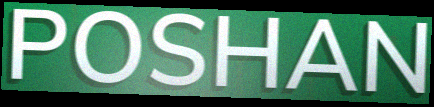
POSHAN